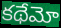
కథేమో